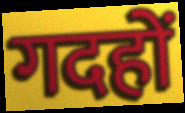
गदहों